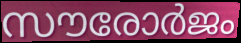
സൗരോർജം